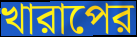
খারাপের